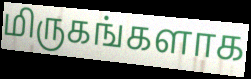
மிருகங்களாக